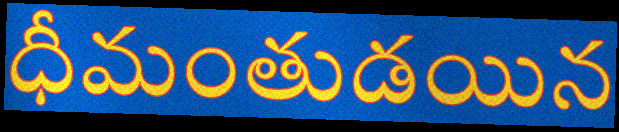
ధీమంతుడయిన